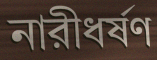
নারীধর্ষণ